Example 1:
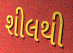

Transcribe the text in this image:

શીલથી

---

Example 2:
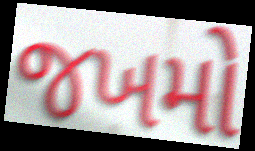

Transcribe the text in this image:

જખમો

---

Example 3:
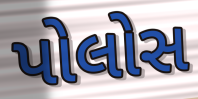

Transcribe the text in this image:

પોલોસ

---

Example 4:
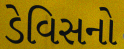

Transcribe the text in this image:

ડેવિસનો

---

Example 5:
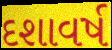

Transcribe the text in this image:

દશાવર્ષ